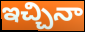
ఇచ్చినా